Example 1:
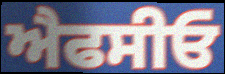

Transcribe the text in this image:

ਐਫਸੀਓ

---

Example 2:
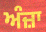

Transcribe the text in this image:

ਅੰਜ਼ਾ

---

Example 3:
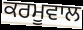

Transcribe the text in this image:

ਕਰਮੂਵਾਲ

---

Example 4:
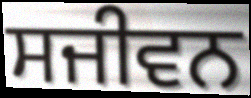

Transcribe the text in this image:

ਸਜੀਵਨ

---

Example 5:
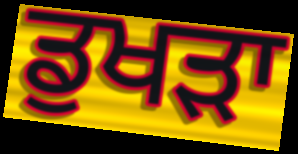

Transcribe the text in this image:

ਡੁਖੜਾ